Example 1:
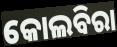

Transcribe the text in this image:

କୋଲବିରା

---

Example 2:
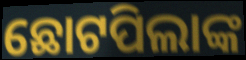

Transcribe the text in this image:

ଛୋଟପିଲାଙ୍କ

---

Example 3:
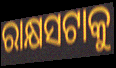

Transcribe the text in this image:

ରାକ୍ଷସଟାକୁ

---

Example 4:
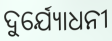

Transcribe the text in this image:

ଦୁର୍ଯ୍ୟୋଧନୀ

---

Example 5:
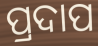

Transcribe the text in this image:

ପ୍ରଦାପ